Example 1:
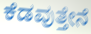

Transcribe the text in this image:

ಕೆಡವುತ್ತೇನೆ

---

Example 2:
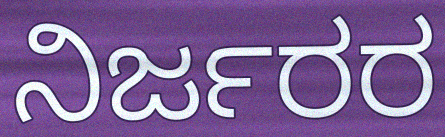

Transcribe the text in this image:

ನಿರ್ಜರರ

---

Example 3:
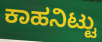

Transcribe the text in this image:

ಕಾಹನಿಟ್ಟು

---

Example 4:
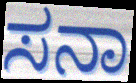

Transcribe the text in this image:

ಸನಾ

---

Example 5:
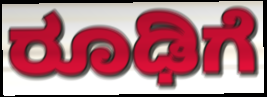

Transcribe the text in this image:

ರೂಢಿಗೆ